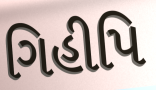
ગિહીપિ